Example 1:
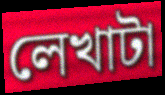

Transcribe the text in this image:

লেখাটা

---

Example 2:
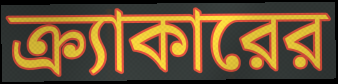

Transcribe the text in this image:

ক্র্যাকারের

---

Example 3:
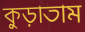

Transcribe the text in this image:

কুড়াতাম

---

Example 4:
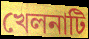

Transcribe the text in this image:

খেলনাটি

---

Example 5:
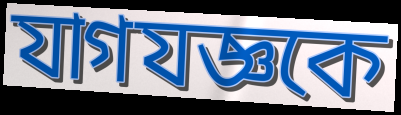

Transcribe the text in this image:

যাগযজ্ঞকে